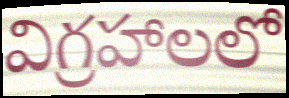
విగ్రహాలలో